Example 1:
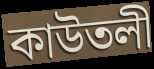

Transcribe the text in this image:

কাউতলী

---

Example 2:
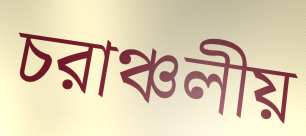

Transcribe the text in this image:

চরাঞ্চলীয়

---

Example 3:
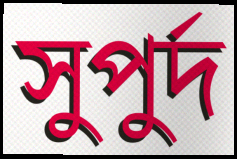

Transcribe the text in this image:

সুপুর্দ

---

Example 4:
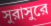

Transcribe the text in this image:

সুরাসুরে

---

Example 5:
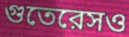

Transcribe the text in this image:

গুতেরেসও